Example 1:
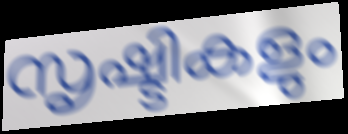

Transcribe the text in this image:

സൃഷ്ടികളും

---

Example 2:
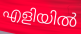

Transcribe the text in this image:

എളിയിൽ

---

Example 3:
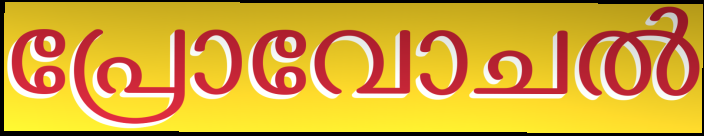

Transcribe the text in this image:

പ്രോവോചൽ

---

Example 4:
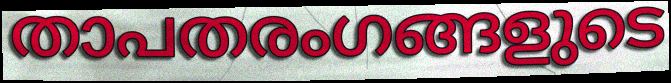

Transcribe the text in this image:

താപതരംഗങ്ങളുടെ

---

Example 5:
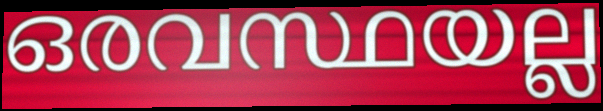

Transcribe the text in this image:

ഒരവസ്ഥയല്ല